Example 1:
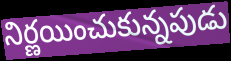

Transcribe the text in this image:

నిర్ణయించుకున్నపుడు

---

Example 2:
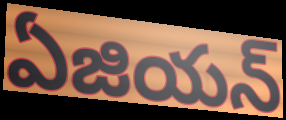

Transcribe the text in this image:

ఏజియన్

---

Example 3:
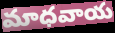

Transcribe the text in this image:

మాధవాయ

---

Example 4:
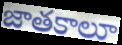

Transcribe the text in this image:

జాతకాలూ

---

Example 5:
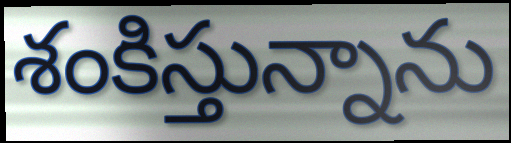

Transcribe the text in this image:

శంకిస్తున్నాను